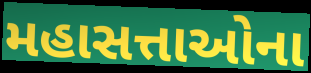
મહાસત્તાઓના